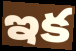
ఇక